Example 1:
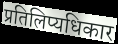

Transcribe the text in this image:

प्रतिलिप्यधिकार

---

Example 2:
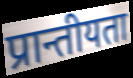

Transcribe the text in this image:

प्रान्तीयता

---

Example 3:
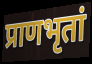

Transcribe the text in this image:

प्राणभृतां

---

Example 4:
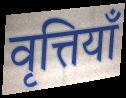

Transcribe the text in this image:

वृत्तियाँ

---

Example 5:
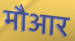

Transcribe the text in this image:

मौआर